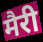
मैरी